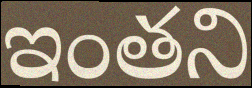
ఇంతని